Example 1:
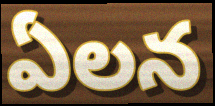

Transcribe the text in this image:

ఏలన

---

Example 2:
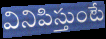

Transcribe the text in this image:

వినిపిస్తుంటే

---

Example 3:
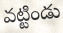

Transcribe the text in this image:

వట్టిండు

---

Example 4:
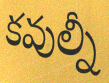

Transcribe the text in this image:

కవుల్నీ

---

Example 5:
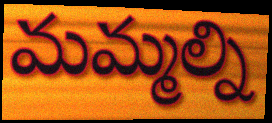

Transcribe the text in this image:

మమ్మల్ని